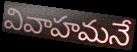
వివాహమనే